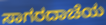
ಸಾಗರದಾಚೆಯ